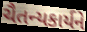
ચૈતન્યકાર્યને